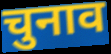
चुनाव